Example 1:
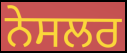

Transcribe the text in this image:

ਨੇਸਲਰ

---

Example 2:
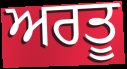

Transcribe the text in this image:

ਅਰਤੂ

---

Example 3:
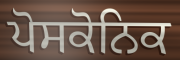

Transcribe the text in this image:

ਪੋਸਕੋਨਿਕ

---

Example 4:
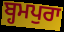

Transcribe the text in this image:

ਬ੍ਹਮਪੁਰਾ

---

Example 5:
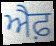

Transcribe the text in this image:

ਐਫ਼